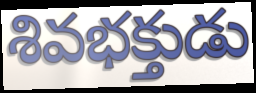
శివభక్తుడు